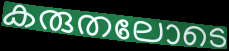
കരുതലോടെ